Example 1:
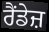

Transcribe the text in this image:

ਰੈਂਡੇਜ਼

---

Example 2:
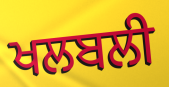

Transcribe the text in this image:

ਖਲਬਲੀ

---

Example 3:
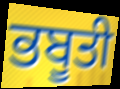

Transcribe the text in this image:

ਭਬੂਤੀ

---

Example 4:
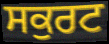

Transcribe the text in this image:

ਸਕੁਰਟ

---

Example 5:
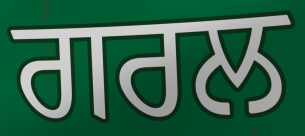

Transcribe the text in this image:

ਗਰਲ